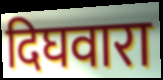
दिघवारा